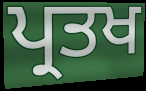
ਪ੍ਰਤਖ